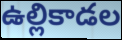
ఉల్లికాడల